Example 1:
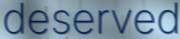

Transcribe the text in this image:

deserved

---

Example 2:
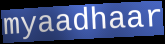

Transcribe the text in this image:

myaadhaar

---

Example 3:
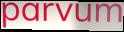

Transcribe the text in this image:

parvum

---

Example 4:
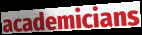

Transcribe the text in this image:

academicians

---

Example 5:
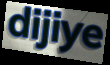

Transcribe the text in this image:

dijiye